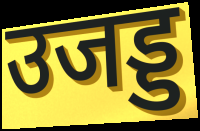
उजड्ड